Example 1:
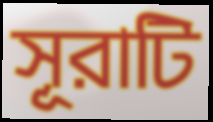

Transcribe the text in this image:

সূরাটি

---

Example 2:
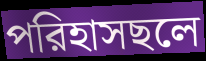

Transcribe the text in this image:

পরিহাসছলে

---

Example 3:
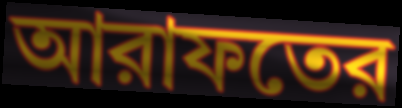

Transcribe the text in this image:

আরাফতের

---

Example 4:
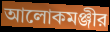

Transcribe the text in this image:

আলোকমঞ্জীর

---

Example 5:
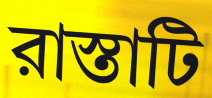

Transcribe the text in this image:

রাস্তাটি